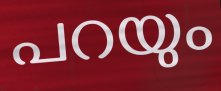
പറയും